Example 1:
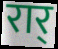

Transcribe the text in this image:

रार्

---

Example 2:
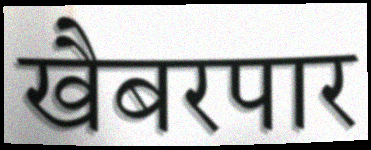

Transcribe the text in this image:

खैबरपार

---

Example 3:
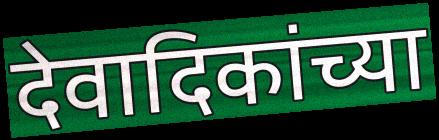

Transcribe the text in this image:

देवादिकांच्या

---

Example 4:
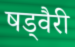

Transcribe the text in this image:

षड्वैरी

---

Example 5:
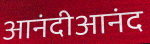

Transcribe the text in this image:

आनंदीआनंद